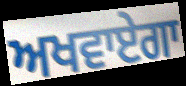
ਅਖਵਾਏਗਾ